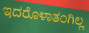
ಇದರೊಳಾತಂಗಿಲ್ಲ